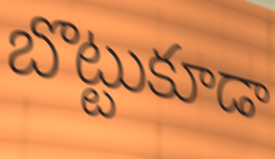
బొట్టుకూడా